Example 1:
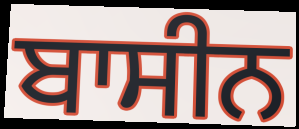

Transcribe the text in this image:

ਬਾਸੀਨ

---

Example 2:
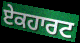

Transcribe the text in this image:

ਏਕਹਾਰਟ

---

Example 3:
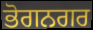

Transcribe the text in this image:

ਭੋਗਨਗਰ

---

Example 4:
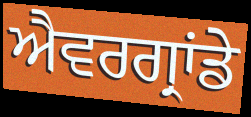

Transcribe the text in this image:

ਐਵਰਗ੍ਰਾਂਡੇ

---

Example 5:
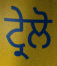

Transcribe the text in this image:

ਟ੍ਰੇਲੋ